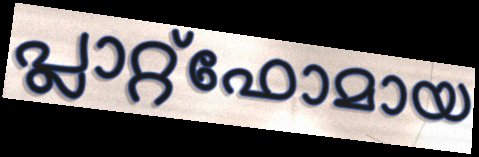
പ്ലാറ്റ്ഫോമായ